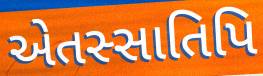
એતસ્સાતિપિ